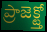
ప్రాజెక్ట్తో